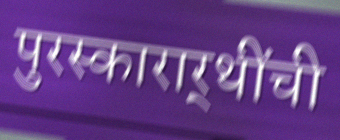
पुरस्कारार्थींची